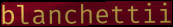
blanchettii